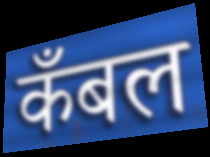
कँबल